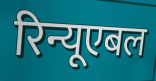
रिन्यूएबल